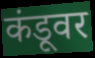
कंडूवर